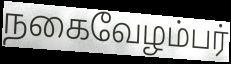
நகைவேழம்பர்